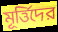
মূর্ত্তিদের